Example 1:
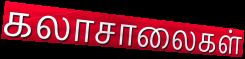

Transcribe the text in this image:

கலாசாலைகள்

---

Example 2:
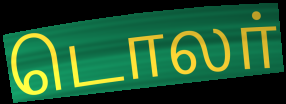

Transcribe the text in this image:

டொலர்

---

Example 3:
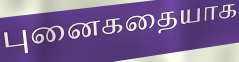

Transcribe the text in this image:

புனைகதையாக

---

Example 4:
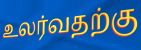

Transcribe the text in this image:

உலர்வதற்கு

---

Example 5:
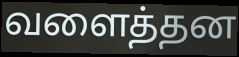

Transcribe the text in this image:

வளைத்தன